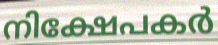
നിക്ഷേപകർ